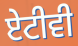
ਏਟੀਵੀ